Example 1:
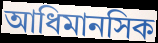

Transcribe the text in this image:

আধিমানসিক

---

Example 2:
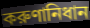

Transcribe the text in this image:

করুণানিধান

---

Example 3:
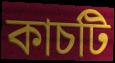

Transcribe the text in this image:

কাচটি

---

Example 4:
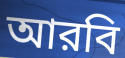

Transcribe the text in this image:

আরবি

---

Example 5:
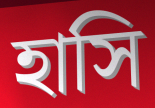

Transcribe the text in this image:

হাসি